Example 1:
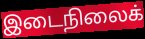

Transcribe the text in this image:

இடைநிலைக்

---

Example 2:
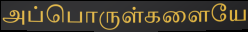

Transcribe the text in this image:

அப்பொருள்களையே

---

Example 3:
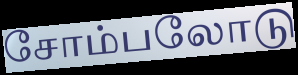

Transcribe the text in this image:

சோம்பலோடு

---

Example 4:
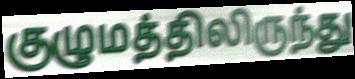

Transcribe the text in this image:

குழுமத்திலிருந்து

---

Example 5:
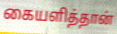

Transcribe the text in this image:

கையளித்தான்